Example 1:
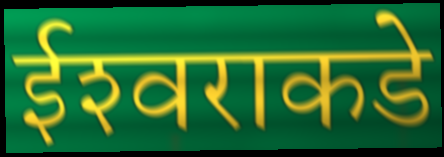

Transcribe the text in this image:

ईश्वराकडे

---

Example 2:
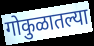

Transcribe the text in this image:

गोकुळातल्या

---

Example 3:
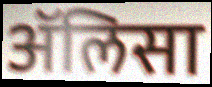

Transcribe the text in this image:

ॲलिसा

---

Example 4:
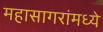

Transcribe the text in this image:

महासागरांमध्ये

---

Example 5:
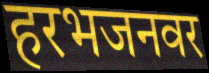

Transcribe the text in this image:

हरभजनवर